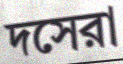
দসেরা